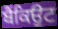
ਬੈਂਕਿਉਟ